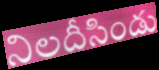
నిలదీసిండు